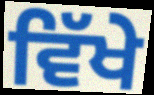
ਵਿੱਖੇ